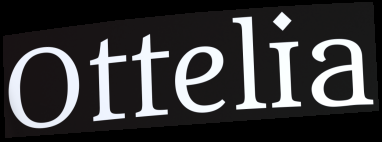
Ottelia